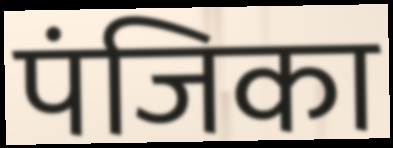
पंजिका